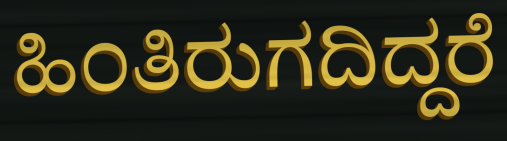
ಹಿಂತಿರುಗದಿದ್ದರೆ